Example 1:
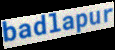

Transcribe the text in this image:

badlapur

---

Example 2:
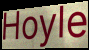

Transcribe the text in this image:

Hoyle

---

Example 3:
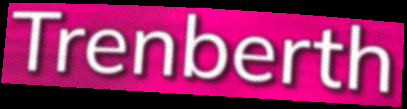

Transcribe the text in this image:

Trenberth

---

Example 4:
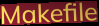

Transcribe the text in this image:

Makefile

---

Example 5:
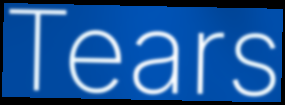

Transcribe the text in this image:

Tears